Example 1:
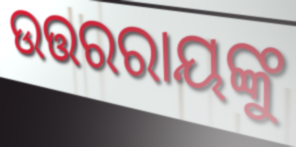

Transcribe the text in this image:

ଉତ୍ତରରାୟଙ୍କୁ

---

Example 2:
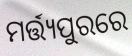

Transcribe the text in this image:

ମର୍ତ୍ତ୍ୟପୁରରେ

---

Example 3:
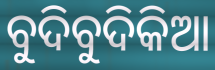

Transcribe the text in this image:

ବୁଦିବୁଦିକିଆ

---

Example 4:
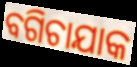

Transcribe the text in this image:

ବଗିଚାଯାକ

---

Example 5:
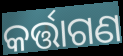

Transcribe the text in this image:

କର୍ତ୍ତାଗଣ